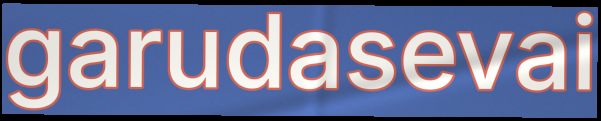
garudasevai